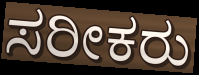
ಸರೀಕರು